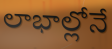
లాభాల్లోనే